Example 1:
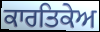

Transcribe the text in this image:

ਕਾਰਤਿਕੇਅ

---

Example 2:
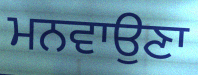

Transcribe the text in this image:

ਮਨਵਾਉਣਾ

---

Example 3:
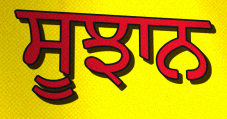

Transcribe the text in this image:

ਸੂਝਾਨ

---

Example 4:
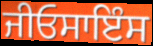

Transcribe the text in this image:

ਜੀਓਸਾਇੰਸ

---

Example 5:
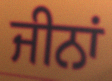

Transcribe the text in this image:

ਜੀਨਾਂ